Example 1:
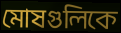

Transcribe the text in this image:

মোষগুলিকে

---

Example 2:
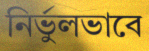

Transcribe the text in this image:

নির্ভুলভাবে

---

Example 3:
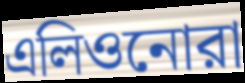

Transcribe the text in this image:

এলিওনোরা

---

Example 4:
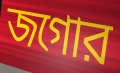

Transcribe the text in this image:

জগোর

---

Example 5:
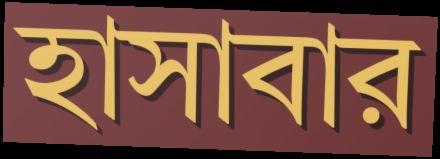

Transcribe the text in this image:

হাসাবার